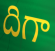
దిగా